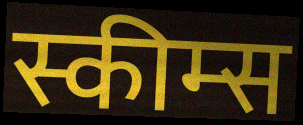
स्कीम्स